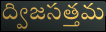
ద్విజసత్తమ